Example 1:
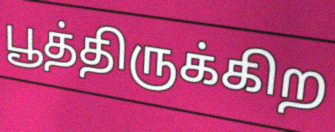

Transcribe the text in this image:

பூத்திருக்கிற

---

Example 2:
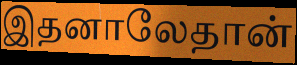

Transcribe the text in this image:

இதனாலேதான்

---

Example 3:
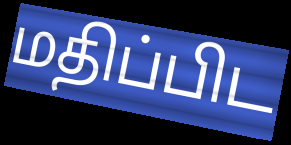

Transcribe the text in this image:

மதிப்பிட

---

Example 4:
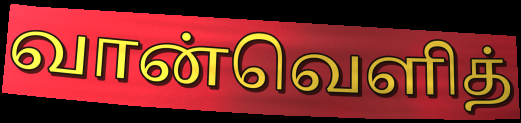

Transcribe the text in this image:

வான்வெளித்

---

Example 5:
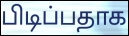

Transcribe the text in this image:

பிடிப்பதாக